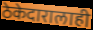
ठेकेदारालाही